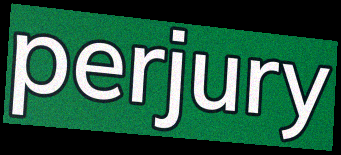
perjury